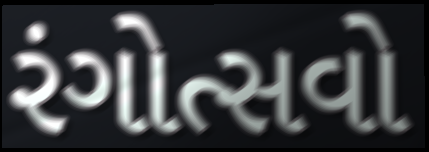
રંગોત્સવો